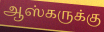
ஆஸ்கருக்கு